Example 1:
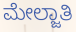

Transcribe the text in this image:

ಮೇಲ್ಜಾತಿ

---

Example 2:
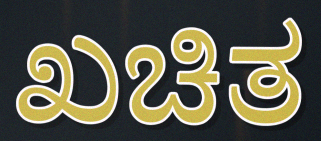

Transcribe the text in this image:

ಖಚಿತ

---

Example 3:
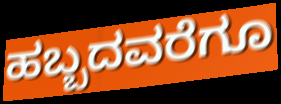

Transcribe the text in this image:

ಹಬ್ಬದವರೆಗೂ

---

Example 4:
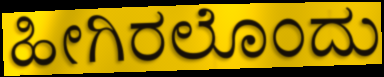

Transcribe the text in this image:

ಹೀಗಿರಲೊಂದು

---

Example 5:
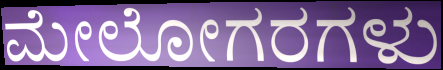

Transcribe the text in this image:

ಮೇಲೋಗರಗಳು